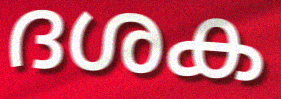
ദശക